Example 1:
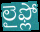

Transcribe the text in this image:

లైఫ్లో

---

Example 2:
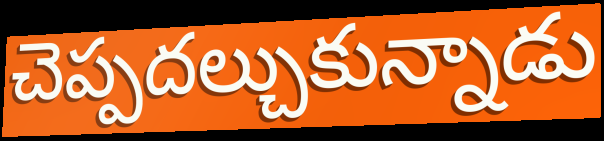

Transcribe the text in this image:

చెప్పదల్చుకున్నాడు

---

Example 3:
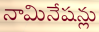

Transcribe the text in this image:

నామినేషన్లు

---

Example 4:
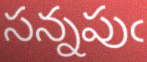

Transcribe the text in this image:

సన్నపుఁ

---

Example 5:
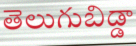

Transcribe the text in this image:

తెలుగుబిడ్డా